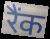
रैंक